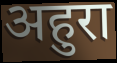
अहुरा